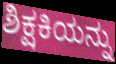
ಶಿಕ್ಷಕಿಯನ್ನು